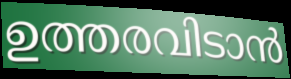
ഉത്തരവിടാൻ